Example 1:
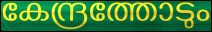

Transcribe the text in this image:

കേന്ദ്രത്തോടും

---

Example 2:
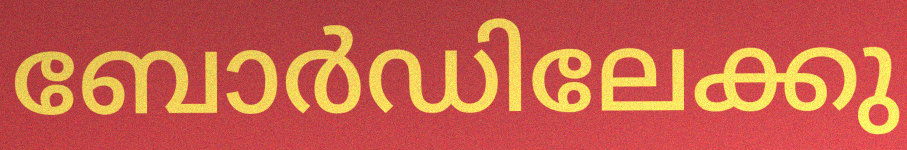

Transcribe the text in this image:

ബോർഡിലേക്കു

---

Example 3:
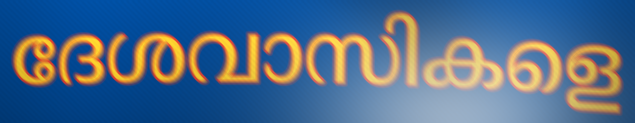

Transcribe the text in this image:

ദേശവാസികളെ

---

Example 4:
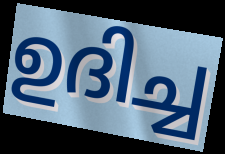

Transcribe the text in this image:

ഉദിച്ച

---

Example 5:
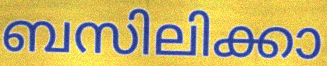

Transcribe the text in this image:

ബസിലിക്കാ